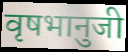
वृषभानुजी